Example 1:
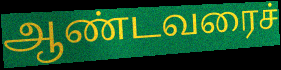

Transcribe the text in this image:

ஆண்டவரைச்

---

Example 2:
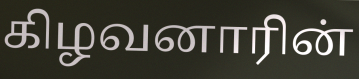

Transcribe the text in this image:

கிழவனாரின்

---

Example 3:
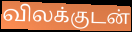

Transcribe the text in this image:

விலக்குடன்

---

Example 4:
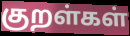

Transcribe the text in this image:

குறள்கள்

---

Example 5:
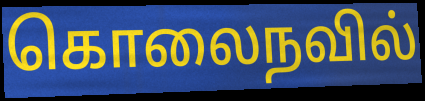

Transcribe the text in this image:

கொலைநவில்